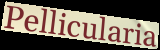
Pellicularia